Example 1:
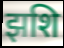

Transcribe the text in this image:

झशि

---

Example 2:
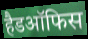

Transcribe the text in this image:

हैडऑफिस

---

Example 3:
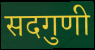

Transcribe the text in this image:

सदगुणी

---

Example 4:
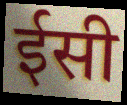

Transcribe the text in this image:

ईसी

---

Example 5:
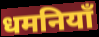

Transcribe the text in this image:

धमनियाँ